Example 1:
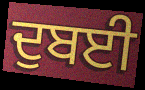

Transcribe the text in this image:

ਦੁਬਈ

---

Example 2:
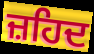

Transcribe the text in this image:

ਜ਼ਹਿਦ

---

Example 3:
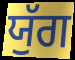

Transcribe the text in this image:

ਯੁੱਗ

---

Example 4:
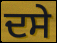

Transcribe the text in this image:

ਦਸੇ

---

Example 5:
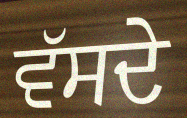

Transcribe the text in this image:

ਵੱਸਦੇ